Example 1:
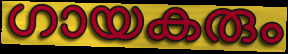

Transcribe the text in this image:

ഗായകരും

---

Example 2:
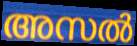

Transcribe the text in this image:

അസൽ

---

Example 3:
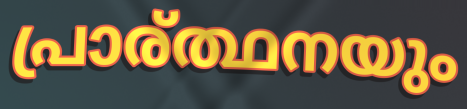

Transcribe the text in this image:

പ്രാര്ത്ഥനയും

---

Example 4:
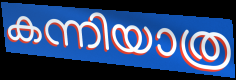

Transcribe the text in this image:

കന്നിയാത്ര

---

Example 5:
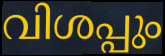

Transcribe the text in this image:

വിശപ്പും